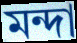
মন্দা